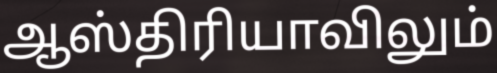
ஆஸ்திரியாவிலும்